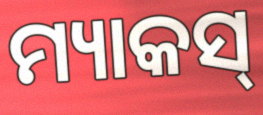
ମ୍ୟାକସ୍